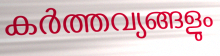
കർത്തവ്യങ്ങളും